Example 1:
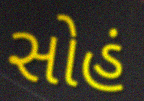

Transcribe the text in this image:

સોહં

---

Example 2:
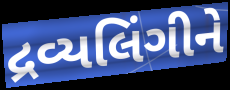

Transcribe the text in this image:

દ્રવ્યલિંગીને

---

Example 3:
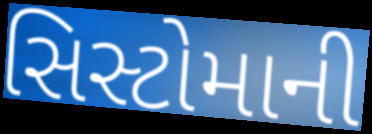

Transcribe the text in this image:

સિસ્ટોમાની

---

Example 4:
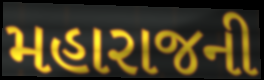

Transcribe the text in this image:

મહારાજની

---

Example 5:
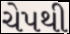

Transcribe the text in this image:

ચેપથી